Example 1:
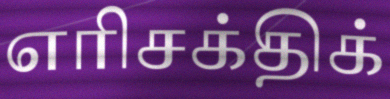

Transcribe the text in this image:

எரிசக்திக்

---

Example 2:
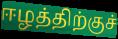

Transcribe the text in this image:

ஈழத்திற்குச்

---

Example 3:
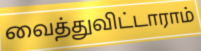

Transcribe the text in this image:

வைத்துவிட்டாராம்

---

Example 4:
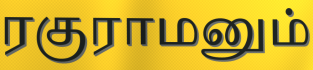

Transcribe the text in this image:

ரகுராமனும்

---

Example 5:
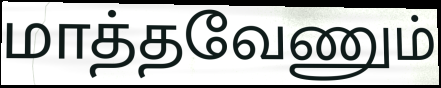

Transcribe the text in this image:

மாத்தவேணும்